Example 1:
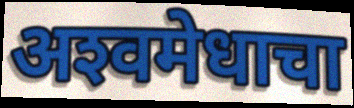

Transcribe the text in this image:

अश्‍वमेधाचा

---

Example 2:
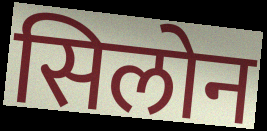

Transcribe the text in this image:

सिलोन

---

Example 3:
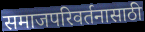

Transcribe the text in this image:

समाजपरिवर्तनासाठी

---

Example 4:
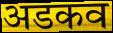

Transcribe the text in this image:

अडकव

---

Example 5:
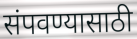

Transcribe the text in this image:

संपवण्यासाठी